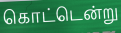
கொட்டென்று